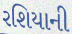
રશિયાની